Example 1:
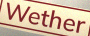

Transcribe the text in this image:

Wether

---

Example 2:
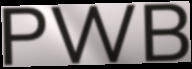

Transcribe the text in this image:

PWB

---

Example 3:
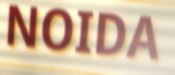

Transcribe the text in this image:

NOIDA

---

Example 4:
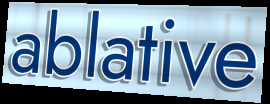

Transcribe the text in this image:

ablative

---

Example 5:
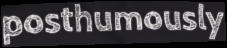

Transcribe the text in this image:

posthumously